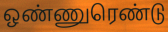
ஒண்ணுரெண்டு